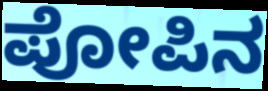
ಪೋಪಿನ